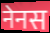
नेनस